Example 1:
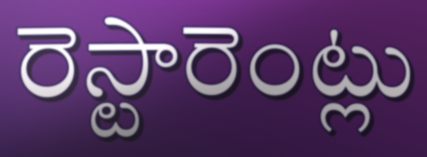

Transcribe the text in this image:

రెస్టారెంట్లు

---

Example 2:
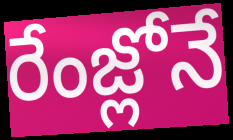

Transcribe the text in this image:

రేంజ్లోనే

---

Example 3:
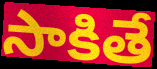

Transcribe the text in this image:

సాకితే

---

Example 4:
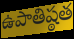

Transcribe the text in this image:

ఉపాతిష్ఠత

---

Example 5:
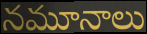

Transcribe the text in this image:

నమూనాలు